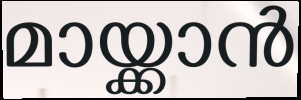
മായ്ക്കാൻ